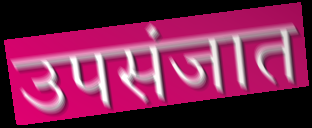
उपसंजात